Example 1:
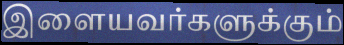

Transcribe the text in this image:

இளையவர்களுக்கும்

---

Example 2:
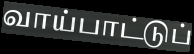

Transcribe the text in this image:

வாய்பாட்டுப்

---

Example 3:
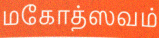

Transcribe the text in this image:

மகோத்ஸவம்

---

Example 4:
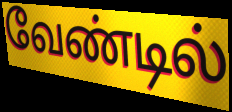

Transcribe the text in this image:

வேண்டில்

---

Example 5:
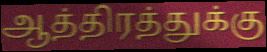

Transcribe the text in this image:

ஆத்திரத்துக்கு